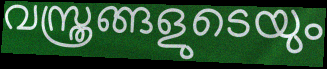
വസ്ത്രങ്ങളുടെയും